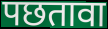
पछतावा